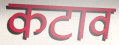
कटाव